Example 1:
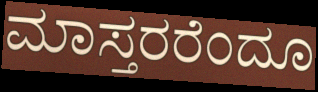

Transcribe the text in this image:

ಮಾಸ್ತರರೆಂದೂ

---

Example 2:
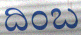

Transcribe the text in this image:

ದಿಂಬ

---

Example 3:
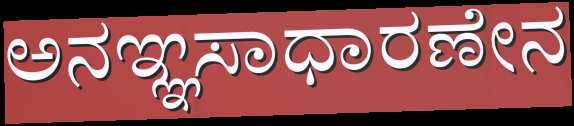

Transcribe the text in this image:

ಅನಞ್ಞಸಾಧಾರಣೇನ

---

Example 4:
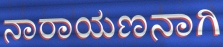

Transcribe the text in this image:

ನಾರಾಯಣನಾಗಿ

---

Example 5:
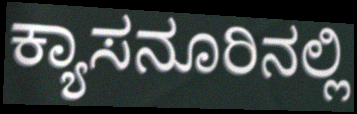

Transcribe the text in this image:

ಕ್ಯಾಸನೂರಿನಲ್ಲಿ